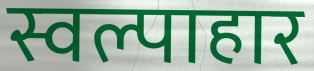
स्‍वल्‍पाहार